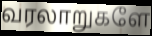
வரலாறுகளே